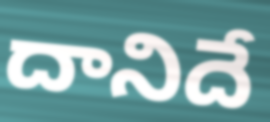
దానిదే